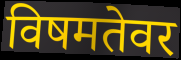
विषमतेवर